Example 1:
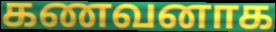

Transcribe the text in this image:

கணவனாக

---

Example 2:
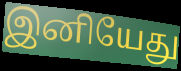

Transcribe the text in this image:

இனியேது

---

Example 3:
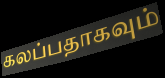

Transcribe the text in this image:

கலப்பதாகவும்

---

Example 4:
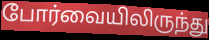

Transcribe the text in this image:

போர்வையிலிருந்து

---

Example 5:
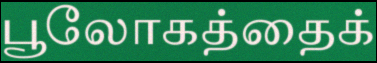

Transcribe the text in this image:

பூலோகத்தைக்